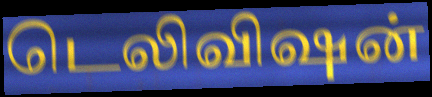
டெலிவிஷன்